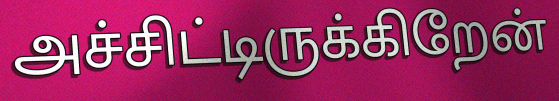
அச்சிட்டிருக்கிறேன்